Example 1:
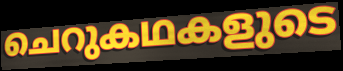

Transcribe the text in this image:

ചെറുകഥകളുടെ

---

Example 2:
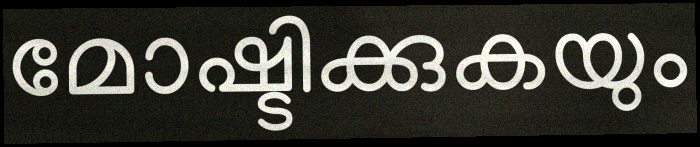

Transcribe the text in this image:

മോഷ്ടിക്കുകയും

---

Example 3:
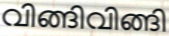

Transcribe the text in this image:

വിങ്ങിവിങ്ങി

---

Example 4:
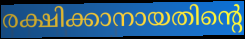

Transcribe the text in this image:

രക്ഷിക്കാനായതിന്റെ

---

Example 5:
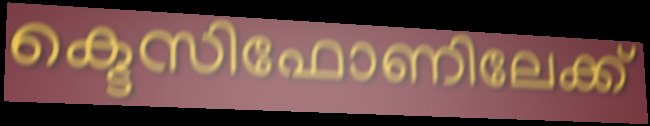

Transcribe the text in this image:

ക്ടെസിഫോണിലേക്ക്